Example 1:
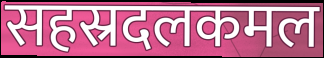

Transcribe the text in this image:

सहस्रदलकमल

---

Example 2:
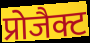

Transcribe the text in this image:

प्रोजैक्ट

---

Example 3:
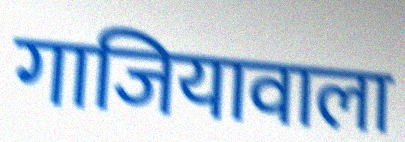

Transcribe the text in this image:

गाजियावाला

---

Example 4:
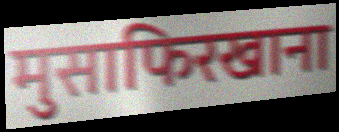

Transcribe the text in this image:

मुसाफिरखाना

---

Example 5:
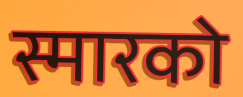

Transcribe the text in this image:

स्मारको